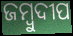
ଜମ୍ବୁଦୀପ